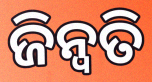
ଜିନ୍ୱତି